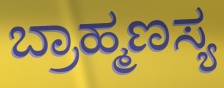
ಬ್ರಾಹ್ಮಣಸ್ಯ